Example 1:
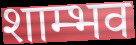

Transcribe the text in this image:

शाम्भव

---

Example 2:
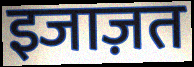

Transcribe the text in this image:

इजाज़त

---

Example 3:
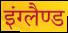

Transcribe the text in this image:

इंग्‍लैण्‍ड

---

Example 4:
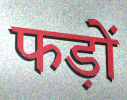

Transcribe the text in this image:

फड़ों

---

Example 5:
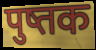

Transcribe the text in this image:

पुष्तक